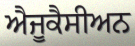
ਐਜੂਕੈਸੀਅਨ